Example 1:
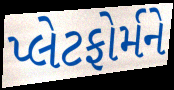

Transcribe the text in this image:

પ્લેટફોર્મને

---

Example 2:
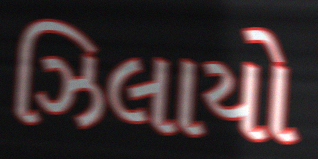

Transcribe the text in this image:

ઝિલાયો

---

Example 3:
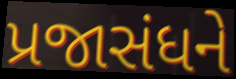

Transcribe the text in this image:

પ્રજાસંધને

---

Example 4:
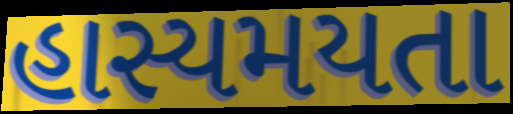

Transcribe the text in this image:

હાસ્યમયતા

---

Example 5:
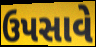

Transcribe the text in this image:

ઉપસાવે